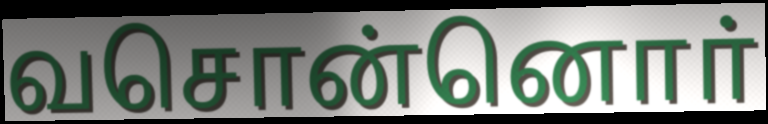
வசொன்னொர்